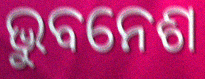
ଭୁବନେଶ